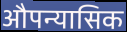
औपन्यासिक